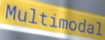
Multimodal